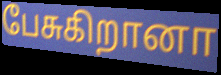
பேசுகிறானா